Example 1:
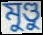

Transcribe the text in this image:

মুণ্ডু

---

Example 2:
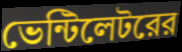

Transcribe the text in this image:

ভেন্টিলেটরের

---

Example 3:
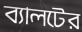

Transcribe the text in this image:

ব্যালটের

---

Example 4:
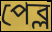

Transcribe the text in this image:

পেব্ল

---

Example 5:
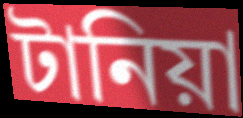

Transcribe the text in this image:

টানিয়া